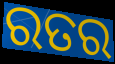
ରତର